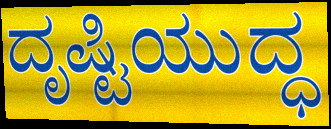
ದೃಷ್ಟಿಯುದ್ಧ